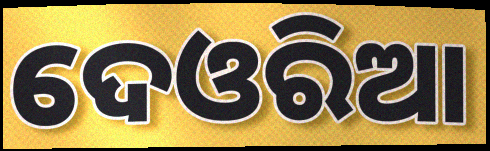
ଦେଓରିଆ